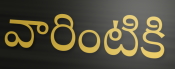
వారింటికి